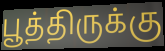
பூத்திருக்கு